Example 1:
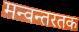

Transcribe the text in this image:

मन्वन्तरतक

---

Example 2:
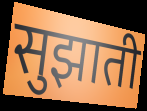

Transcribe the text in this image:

सुझाती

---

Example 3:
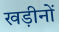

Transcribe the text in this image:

खड़ीनों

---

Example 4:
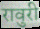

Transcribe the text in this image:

रावुरी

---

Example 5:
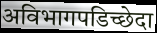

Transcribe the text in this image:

अविभागपडिच्छेदा